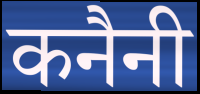
कनैनी